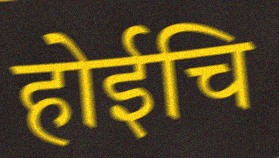
होईचि